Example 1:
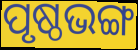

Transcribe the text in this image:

ପୃଷ୍ଠଭଙ୍ଗ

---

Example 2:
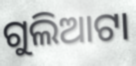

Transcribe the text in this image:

ଗୁଲିଆଟା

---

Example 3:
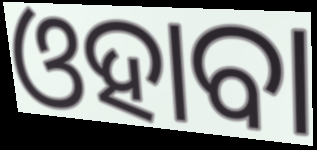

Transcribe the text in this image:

ଓହାବା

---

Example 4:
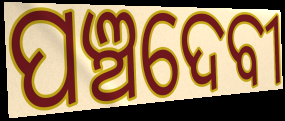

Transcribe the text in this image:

ପଞ୍ଚଦେବୀ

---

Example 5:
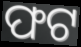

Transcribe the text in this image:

ଫଟ